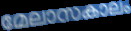
മേലാസകാലം